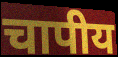
चापीय